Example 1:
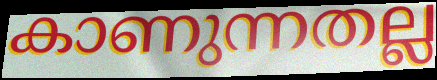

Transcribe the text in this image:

കാണുന്നതല്ല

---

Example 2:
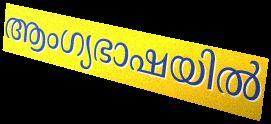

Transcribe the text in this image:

ആംഗ്യഭാഷയിൽ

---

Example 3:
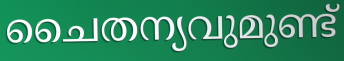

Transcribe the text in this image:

ചൈതന്യവുമുണ്ട്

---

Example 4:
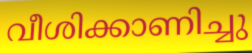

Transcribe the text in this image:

വീശിക്കാണിച്ചു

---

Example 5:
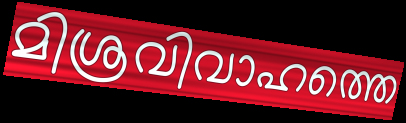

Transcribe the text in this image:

മിശ്രവിവാഹത്തെ